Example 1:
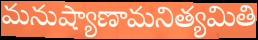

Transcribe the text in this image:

మనుష్యాణామనిత్యమితి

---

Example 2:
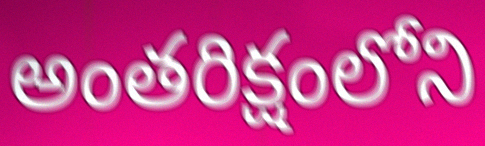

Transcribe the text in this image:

అంతరిక్షంలోని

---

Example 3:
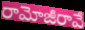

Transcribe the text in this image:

రామోజీరావే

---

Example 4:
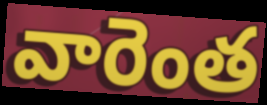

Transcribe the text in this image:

వారెంత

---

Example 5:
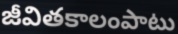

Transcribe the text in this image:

జీవితకాలంపాటు